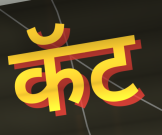
कॅट